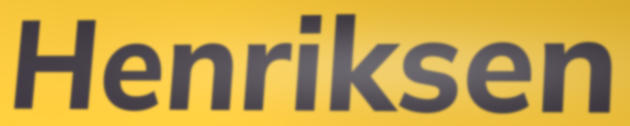
Henriksen